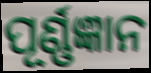
ପୂର୍ଣ୍ଣଜ୍ଞାନ